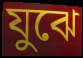
যুঝে